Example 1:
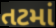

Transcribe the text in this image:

તટમાં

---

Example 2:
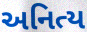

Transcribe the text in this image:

અનિત્ય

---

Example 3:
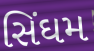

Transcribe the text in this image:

સિંઘમ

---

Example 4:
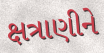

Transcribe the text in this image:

ક્ષત્રાણીને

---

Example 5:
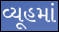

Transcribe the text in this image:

વ્યૂહમાં